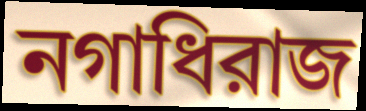
নগাধিরাজ